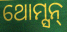
ଥୋମ୍ସନ୍